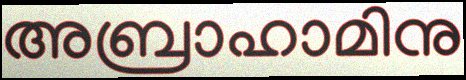
അബ്രാഹാമിനു